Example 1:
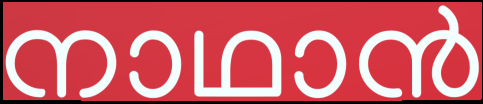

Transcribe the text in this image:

നാഥാൻ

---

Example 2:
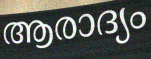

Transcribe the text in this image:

ആരാദ്യം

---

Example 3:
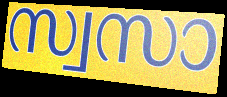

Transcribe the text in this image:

സ്വസാ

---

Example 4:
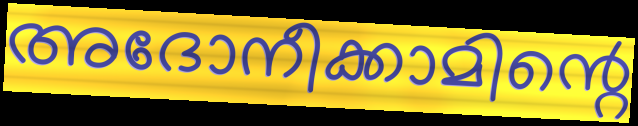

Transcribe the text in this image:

അദോനീക്കാമിന്റെ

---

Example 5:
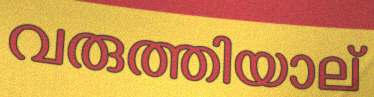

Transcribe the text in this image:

വരുത്തിയാല്